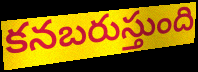
కనబరుస్తుంది